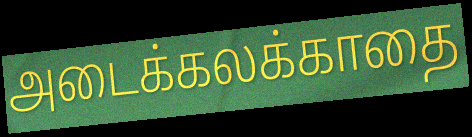
அடைக்கலக்காதை